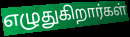
எழுதுகிறார்கள்